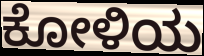
ಕೋಳಿಯ